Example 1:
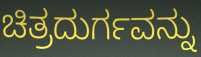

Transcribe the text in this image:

ಚಿತ್ರದುರ್ಗವನ್ನು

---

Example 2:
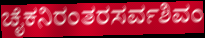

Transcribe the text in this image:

ಚೈಕನಿರಂತರಸರ್ವಶಿವಂ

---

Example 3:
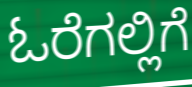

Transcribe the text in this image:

ಓರೆಗಲ್ಲಿಗೆ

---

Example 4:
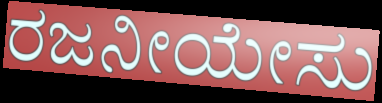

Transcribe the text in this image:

ರಜನೀಯೇಸು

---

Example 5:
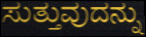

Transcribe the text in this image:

ಸುತ್ತುವುದನ್ನು